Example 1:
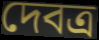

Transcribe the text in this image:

দেবত্র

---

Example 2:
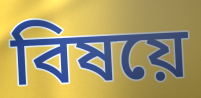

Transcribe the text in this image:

বিষয়ে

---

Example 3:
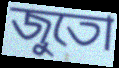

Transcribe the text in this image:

জুতো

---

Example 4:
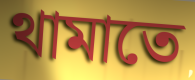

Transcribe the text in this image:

থামাতে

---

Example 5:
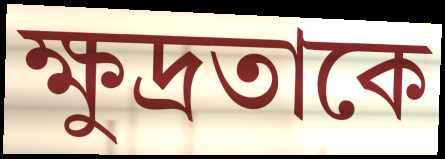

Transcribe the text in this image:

ক্ষুদ্রতাকে